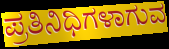
ಪ್ರತಿನಿಧಿಗಳಾಗುವ